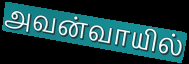
அவன்வாயில்